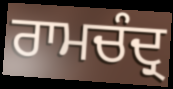
ਰਾਮਚੰਦ੍ਰ